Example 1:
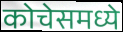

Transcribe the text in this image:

कोचेसमध्ये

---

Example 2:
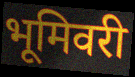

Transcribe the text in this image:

भूमिवरी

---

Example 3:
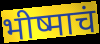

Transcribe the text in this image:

भीष्माचं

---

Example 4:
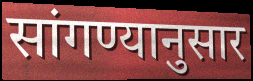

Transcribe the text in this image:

सांगण्यानुसार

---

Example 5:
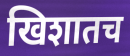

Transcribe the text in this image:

खिशातच